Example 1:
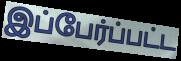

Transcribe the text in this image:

இப்பேர்ப்பட்ட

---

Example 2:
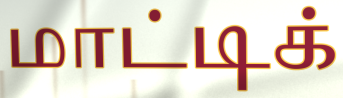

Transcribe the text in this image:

மாட்டிக்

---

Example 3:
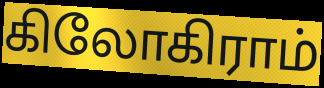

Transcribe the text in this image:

கிலோகிராம்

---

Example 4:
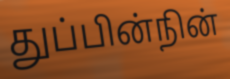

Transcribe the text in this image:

துப்பின்நின்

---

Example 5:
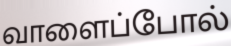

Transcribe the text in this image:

வாளைப்போல்